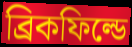
ব্রিকফিল্ডে